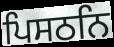
ਪਿਸਠਨਿ